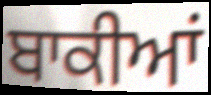
ਬਾਕੀਆਂ